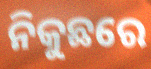
ନିକୁଛରେ